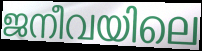
ജനീവയിലെ